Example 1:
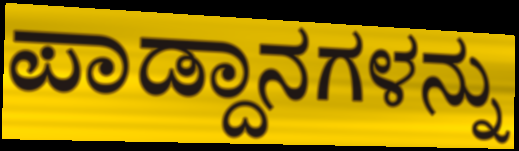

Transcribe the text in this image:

ಪಾಡ್ದಾನಗಳನ್ನು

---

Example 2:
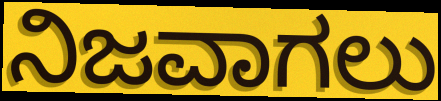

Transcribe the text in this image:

ನಿಜವಾಗಲು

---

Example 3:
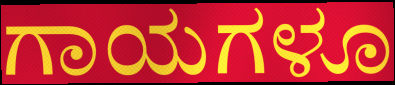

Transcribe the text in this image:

ಗಾಯಗಳೂ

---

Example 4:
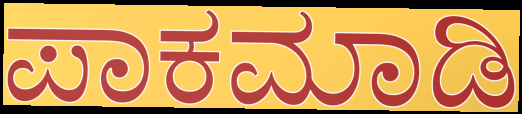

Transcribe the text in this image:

ಪಾಕಮಾಡಿ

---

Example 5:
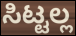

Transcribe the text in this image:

ಸಿಟ್ಟಲ್ಲ